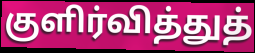
குளிர்வித்துத்